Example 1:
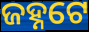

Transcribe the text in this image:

ଜହ୍ନଟେ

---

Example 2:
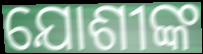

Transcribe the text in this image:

ଯୋଶୀଙ୍କ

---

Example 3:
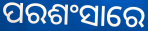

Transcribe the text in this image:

ପରଶଂସାରେ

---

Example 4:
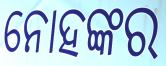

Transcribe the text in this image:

ନୋହଙ୍କର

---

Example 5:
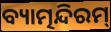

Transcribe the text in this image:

ବ୍ୟାତ୍ମନ୍ଦିରମ୍